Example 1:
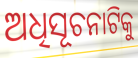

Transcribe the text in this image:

ଅଧିସୂଚନାଟିକୁ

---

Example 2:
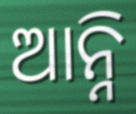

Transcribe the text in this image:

ଆନ୍ନି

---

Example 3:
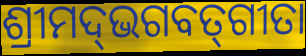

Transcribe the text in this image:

ଶ୍ରୀମଦ୍‌ଭଗବତ୍‌ଗୀତା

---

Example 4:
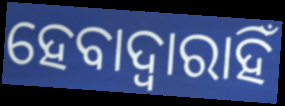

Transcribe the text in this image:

ହେବାଦ୍ଵାରାହିଁ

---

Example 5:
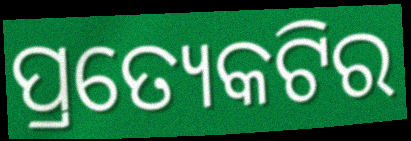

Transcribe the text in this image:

ପ୍ରତ୍ୟେକଟିର